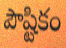
పౌష్టికం